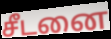
சீடனை